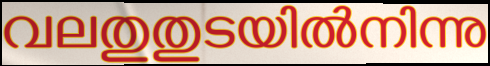
വലതുതുടയിൽനിന്നു